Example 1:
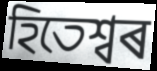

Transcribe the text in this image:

হিতেশ্বৰ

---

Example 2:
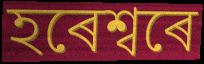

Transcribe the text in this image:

হৰেশ্বৰে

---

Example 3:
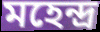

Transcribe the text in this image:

মহেন্দ্ৰ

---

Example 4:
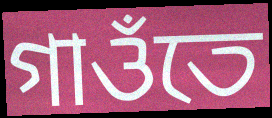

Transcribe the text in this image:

গাওঁতে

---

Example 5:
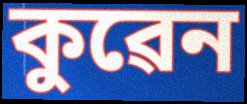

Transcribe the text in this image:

কুৱেন